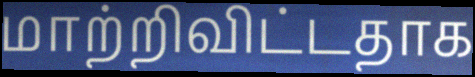
மாற்றிவிட்டதாக